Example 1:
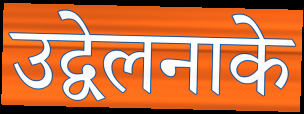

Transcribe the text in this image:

उद्वेलनाके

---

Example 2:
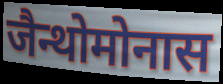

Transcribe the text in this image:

जैन्थोमोनास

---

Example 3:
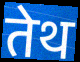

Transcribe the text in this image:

तेथ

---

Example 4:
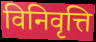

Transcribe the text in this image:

विनिवृत्ति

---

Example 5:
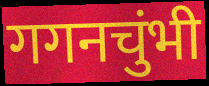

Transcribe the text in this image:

गगनचुंभी